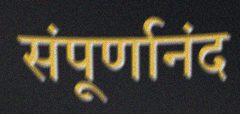
संपूर्णानंद